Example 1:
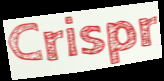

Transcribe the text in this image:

Crispr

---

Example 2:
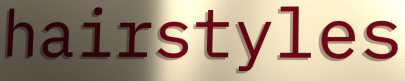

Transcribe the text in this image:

hairstyles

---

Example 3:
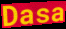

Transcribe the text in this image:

Dasa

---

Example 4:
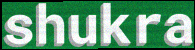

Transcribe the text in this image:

shukra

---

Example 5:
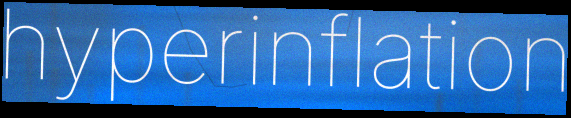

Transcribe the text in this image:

hyperinflation